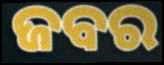
ଜବର